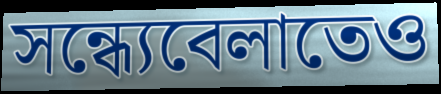
সন্ধ্যেবেলাতেও